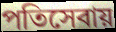
পতিসেবায়